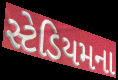
સ્ટેડિયમના